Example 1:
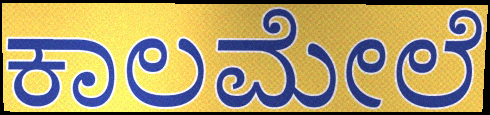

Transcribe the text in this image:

ಕಾಲಮೇಲೆ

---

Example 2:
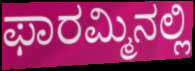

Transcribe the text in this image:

ಫಾರಮ್ಮಿನಲ್ಲಿ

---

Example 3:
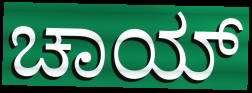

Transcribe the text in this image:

ಚಾಯ್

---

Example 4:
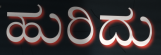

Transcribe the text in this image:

ಹುರಿದು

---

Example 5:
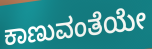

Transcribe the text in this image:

ಕಾಣುವಂತೆಯೇ